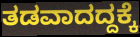
ತಡವಾದದ್ದಕ್ಕೆ